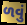
ળવું